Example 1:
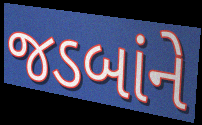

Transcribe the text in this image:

જડબાંને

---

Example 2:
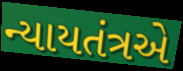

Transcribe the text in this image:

ન્યાયતંત્રએ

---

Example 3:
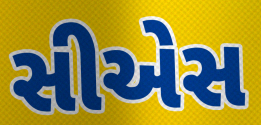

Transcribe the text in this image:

સીએસ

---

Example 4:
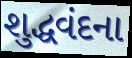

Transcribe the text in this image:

શુદ્ધવંદના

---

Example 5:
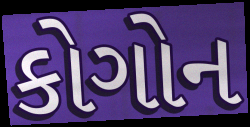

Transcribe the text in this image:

કોગોન